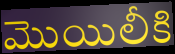
మొయిలీకి